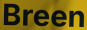
Breen